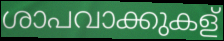
ശാപവാക്കുകള്